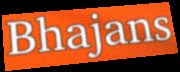
Bhajans